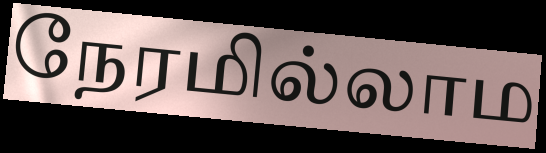
நேரமில்லாம